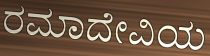
ರಮಾದೇವಿಯ